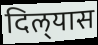
दिल्यास